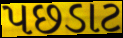
પછડાટ